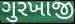
ગુરખાજી